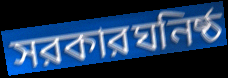
সরকারঘনিষ্ঠ